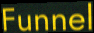
Funnel